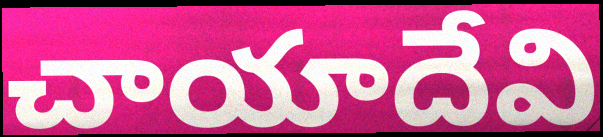
చాయాదేవి